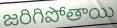
జరిగిపోతాయి